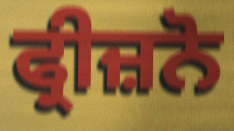
ਫ੍ਰੀਜ਼ਨੋ